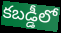
కబడ్డీలో